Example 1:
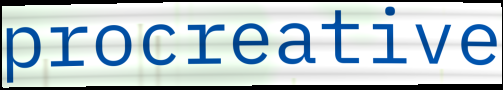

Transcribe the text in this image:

procreative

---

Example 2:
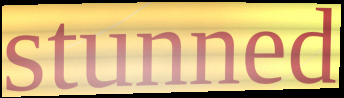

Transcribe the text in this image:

stunned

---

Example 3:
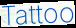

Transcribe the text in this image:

Tattoo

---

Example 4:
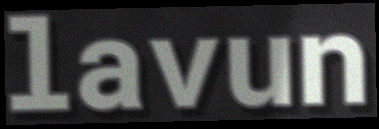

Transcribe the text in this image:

lavun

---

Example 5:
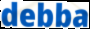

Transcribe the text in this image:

debba